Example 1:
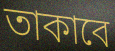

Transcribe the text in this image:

তাকাবে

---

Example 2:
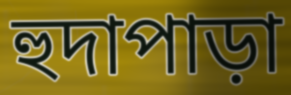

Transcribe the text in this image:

হুদাপাড়া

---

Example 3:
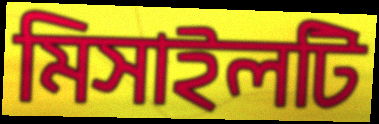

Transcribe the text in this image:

মিসাইলটি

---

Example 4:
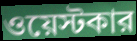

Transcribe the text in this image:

ওয়েস্টকার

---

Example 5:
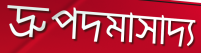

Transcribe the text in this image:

দ্রুপদমাসাদ্য